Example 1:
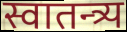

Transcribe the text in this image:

स्वातन्त्र्य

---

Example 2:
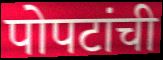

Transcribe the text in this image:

पोपटांची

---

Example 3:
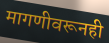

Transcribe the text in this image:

मागणीवरूनही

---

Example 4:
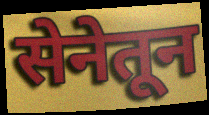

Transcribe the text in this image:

सेनेतून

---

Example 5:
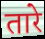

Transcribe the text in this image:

तारे